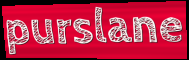
purslane